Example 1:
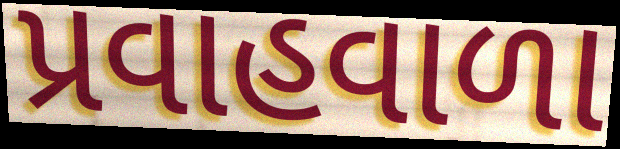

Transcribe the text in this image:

પ્રવાહવાળા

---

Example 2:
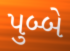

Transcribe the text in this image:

પુબ્બે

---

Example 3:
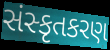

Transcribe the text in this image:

સંસ્કૃતકરણ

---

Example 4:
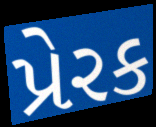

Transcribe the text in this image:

પ્રેરક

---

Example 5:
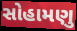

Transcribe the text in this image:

સોહામણુ